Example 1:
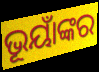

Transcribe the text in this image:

ଭୂୟାଁଙ୍କର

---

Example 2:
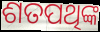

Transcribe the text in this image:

ଶତପଥିଙ୍କ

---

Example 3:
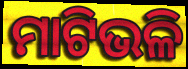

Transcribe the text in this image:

ମାଟିଭଳି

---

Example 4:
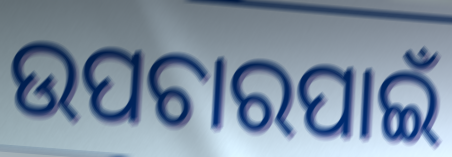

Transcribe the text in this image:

ଉପଚାରପାଇଁ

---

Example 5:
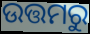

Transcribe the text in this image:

ଉତ୍ତମରୁ